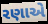
રણાએ